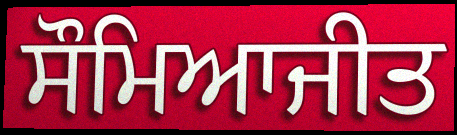
ਸੌਮਿਆਜੀਤ